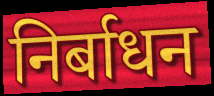
निर्बाधन